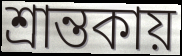
শ্রান্তকায়